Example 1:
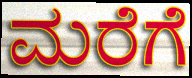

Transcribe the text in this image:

ಮರೆಗೆ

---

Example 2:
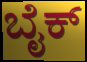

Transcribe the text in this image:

ಬೈಕ್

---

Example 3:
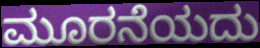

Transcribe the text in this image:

ಮೂರನೆಯದು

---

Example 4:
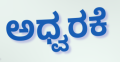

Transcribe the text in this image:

ಅಧ್ವರಕೆ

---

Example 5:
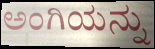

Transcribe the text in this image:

ಅಂಗಿಯನ್ನು